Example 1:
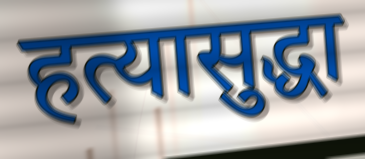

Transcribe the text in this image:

हत्यासुद्धा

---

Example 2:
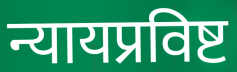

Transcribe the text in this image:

न्यायप्रविष्ट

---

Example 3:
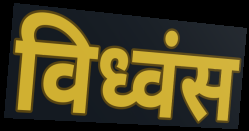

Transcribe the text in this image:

विध्वंस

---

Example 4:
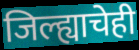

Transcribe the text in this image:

जिल्ह्याचेही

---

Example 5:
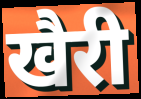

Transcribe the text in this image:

खैरी